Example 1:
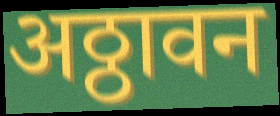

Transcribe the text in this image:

अठ्ठावन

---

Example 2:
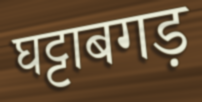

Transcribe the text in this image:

घट्टाबगड़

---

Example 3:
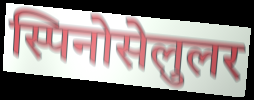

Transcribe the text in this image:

स्पिनोसेलुलर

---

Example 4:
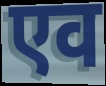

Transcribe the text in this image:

एव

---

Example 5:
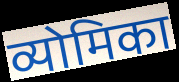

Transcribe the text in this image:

व्योमिका